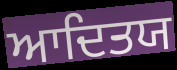
ਆਦਿਤਯ